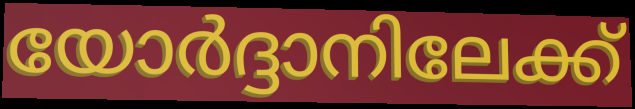
യോർദ്ദാനിലേക്ക്